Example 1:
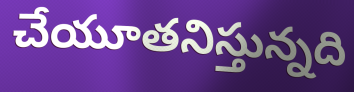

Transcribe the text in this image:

చేయూతనిస్తున్నది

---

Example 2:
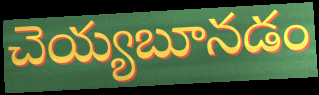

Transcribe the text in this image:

చెయ్యబూనడం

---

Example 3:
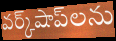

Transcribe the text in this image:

వర్క్‌షాప్‌లను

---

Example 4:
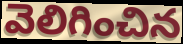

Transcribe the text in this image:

వెలిగించిన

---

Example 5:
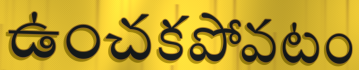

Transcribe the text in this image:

ఉంచకపోవటం